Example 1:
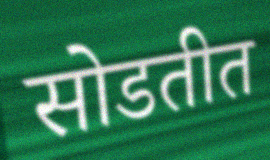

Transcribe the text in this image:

सोडतीत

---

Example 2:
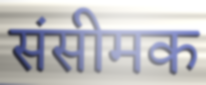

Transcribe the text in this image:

संसीमक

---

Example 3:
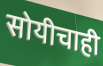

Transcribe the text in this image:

सोयीचाही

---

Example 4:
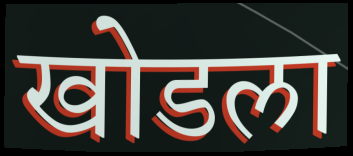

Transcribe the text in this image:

खोडला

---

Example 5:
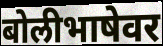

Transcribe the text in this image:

बोलीभाषेवर